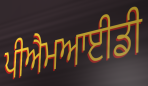
ਪੀਐਮਆਈਡੀ